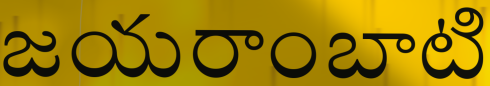
జయరాంబాటి